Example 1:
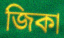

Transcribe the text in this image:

জিকা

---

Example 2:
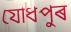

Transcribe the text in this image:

যোধপুৰ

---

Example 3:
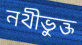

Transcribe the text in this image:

নথীভুক্ত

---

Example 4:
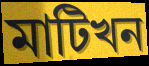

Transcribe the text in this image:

মাটিখন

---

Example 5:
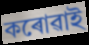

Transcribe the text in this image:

কৰোৱাই